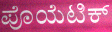
ಪೊಯೆಟಿಕ್